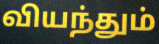
வியந்தும்